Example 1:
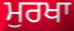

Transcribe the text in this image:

ਮੁਰਖਾ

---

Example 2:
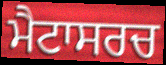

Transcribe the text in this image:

ਮੈਟਾਸਰਚ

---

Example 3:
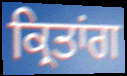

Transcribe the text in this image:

ਕ੍ਰਿਤਾਂਗ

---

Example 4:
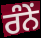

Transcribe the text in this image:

ਰੰਨੇਂ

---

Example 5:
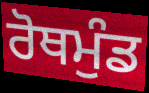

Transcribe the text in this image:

ਰੋਥਮੁੰਡ